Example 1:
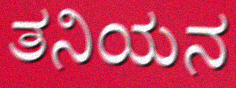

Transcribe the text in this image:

ತನಿಯನ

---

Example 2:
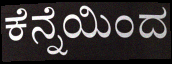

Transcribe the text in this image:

ಕೆನ್ನೆಯಿಂದ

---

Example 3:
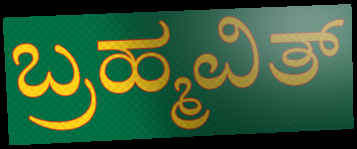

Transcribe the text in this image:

ಬ್ರಹ್ಮವಿತ್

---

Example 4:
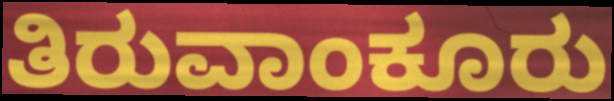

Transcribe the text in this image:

ತಿರುವಾಂಕೂರು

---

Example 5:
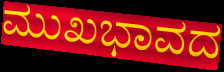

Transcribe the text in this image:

ಮುಖಭಾವದ